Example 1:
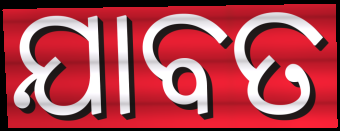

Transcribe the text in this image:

ଯାବତ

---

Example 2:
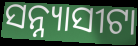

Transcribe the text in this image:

ସନ୍ନ୍ୟାସୀଟା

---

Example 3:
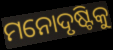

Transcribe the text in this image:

ମନୋଦୃଷ୍ଟିକୁ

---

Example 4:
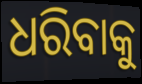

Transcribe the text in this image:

ଧରିବାକୁ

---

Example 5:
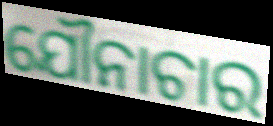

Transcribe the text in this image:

ଯୌନାଚାର